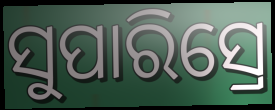
ସୁପାରିସ୍ରେ